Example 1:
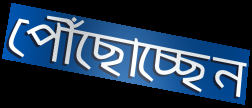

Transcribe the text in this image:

পৌঁছোচ্ছেন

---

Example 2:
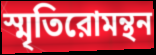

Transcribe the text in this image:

স্মৃতিরোমন্থন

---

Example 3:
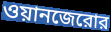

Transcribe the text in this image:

ওয়ানজেরোর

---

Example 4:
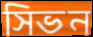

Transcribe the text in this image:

সিভন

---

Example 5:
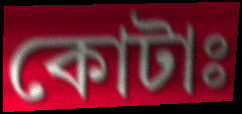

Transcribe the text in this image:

কোটাঃ